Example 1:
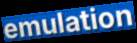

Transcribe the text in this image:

emulation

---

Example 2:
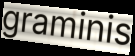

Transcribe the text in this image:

graminis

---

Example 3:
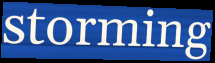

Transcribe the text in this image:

storming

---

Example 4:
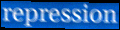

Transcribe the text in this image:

repression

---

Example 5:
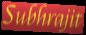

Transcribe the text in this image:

Subhrajit